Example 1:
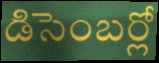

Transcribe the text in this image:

డిసెంబర్లో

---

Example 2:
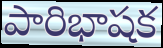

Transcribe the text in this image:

పారిభాషక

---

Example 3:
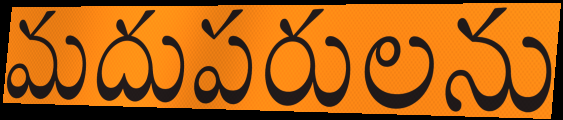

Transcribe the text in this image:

మదుపరులను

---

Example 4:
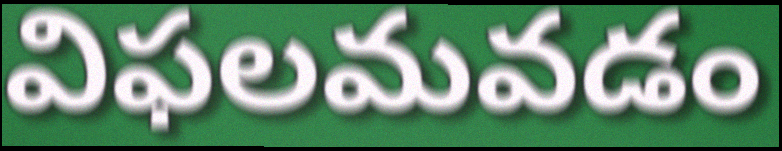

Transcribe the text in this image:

విఫలమవడం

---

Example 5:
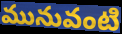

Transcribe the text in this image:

మునువంటి